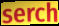
serch